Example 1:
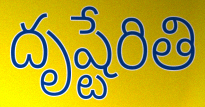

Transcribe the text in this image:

దృష్టేరితి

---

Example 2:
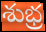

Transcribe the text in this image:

శుభ్ర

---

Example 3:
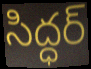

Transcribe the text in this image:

సిద్ధర్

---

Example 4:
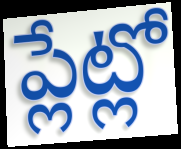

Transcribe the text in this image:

ప్లేట్లో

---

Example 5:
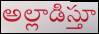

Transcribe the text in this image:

అల్లాడిస్తూ